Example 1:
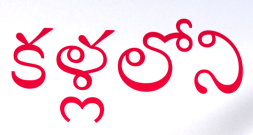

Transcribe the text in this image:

కళ్లలోని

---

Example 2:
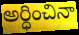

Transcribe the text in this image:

అర్ధించినా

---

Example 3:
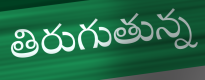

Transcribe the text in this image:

తిరుగుతున్న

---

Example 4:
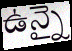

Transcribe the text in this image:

ఉన్నై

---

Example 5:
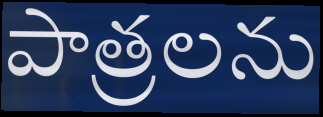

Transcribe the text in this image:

పాత్రలను